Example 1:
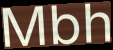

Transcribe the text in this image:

Mbh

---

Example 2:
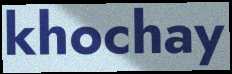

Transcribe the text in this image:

khochay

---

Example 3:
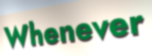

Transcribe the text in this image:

Whenever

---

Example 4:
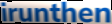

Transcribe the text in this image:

irunthen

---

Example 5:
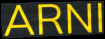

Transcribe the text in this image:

ARNI